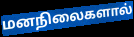
மனநிலைகளால்